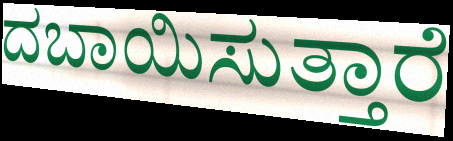
ದಬಾಯಿಸುತ್ತಾರೆ